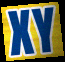
XY